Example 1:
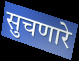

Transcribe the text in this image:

सुचणारे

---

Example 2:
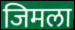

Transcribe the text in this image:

जिमला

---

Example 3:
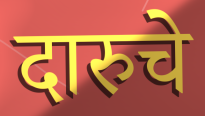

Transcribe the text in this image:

दारुचे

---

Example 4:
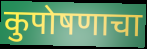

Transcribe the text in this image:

कुपोषणाचा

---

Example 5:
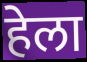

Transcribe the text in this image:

हेला